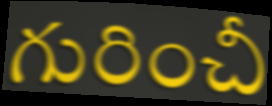
గురించీ